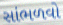
સાંભળવો